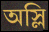
অস্লি